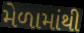
મેળામાંથી